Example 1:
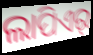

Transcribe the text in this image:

ଲାପିଏର୍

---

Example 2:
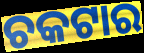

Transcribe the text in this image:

ଚକଟାର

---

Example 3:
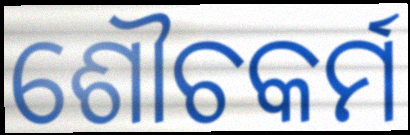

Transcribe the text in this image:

ଶୌଚକର୍ମ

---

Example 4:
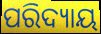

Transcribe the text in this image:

ପରିଦ୍ୟାୟ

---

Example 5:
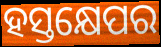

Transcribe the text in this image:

ହସ୍ତକ୍ଷେପର